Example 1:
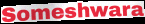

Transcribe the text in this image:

Someshwara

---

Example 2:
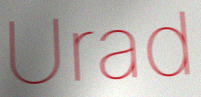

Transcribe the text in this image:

Urad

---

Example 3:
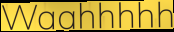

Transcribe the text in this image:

Waahhhhh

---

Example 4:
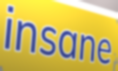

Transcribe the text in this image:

insane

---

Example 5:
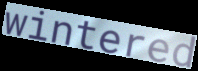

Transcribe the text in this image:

wintered